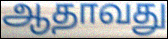
ஆதாவது